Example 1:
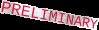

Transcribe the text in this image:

PRELIMINARY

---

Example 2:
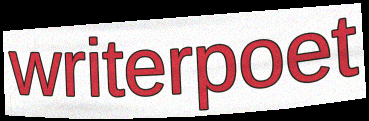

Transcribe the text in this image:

writerpoet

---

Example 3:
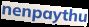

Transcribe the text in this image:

nenpaythu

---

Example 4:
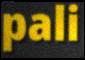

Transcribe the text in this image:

pali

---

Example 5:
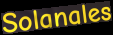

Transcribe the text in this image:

Solanales